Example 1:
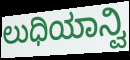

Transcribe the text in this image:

ಲುಧಿಯಾನ್ವಿ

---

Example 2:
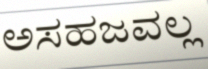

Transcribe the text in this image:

ಅಸಹಜವಲ್ಲ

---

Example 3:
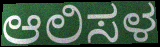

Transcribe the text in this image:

ಆಲಿಸಳ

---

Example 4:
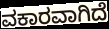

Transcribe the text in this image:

ವಕಾರವಾಗಿದೆ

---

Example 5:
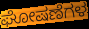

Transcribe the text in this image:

ಘೋಷಣೆಗಳ